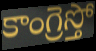
కాంగ్రెస్తో